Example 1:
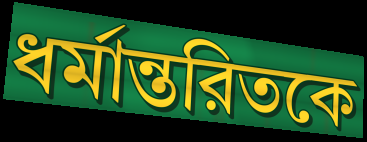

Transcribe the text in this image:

ধর্মান্তরিতকে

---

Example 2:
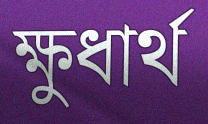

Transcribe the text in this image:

ক্ষুধার্থ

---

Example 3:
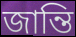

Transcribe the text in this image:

জান্তি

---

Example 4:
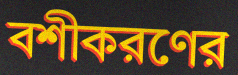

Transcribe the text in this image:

বশীকরণের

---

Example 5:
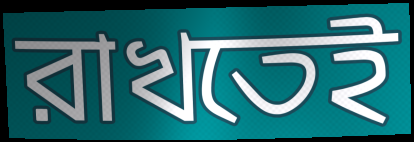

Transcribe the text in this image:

রাখতেই